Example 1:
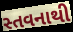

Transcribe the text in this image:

સ્તવનાથી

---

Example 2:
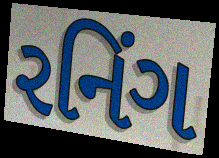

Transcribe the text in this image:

રનિંગ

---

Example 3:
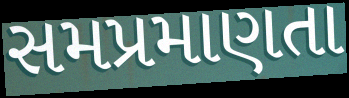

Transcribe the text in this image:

સમપ્રમાણતા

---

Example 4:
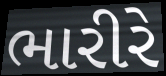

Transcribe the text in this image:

ભારીરે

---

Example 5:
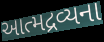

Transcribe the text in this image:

આત્મદ્રવ્યના